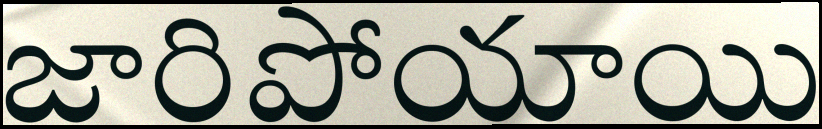
జారిపోయాయి